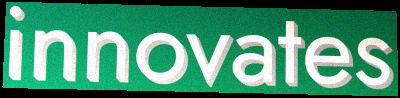
innovates